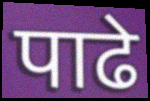
पाढे